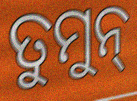
ତୁମୁନ୍